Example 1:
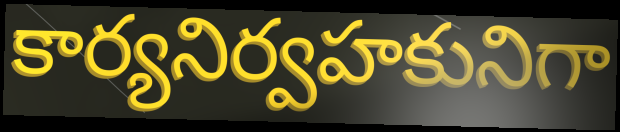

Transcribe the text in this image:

కార్యనిర్వహకునిగా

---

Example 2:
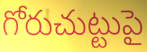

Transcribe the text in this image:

గోరుచుట్టుపై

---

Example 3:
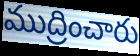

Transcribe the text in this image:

ముద్రించారు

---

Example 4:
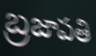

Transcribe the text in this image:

బ్రజాపతి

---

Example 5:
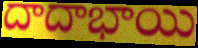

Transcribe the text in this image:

దాదాభాయి